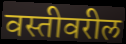
वस्तीवरील